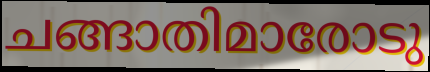
ചങ്ങാതിമാരോടു